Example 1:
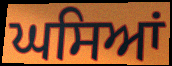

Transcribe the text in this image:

ਘਸਿਆਂ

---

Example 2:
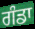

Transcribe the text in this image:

ਗੰਡਾ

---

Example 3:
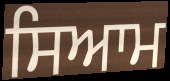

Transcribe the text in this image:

ਸਿਆਮ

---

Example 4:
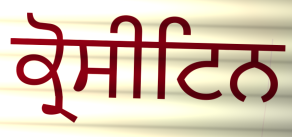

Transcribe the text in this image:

ਕ੍ਰੋਸੀਟਿਨ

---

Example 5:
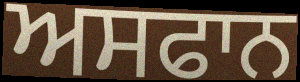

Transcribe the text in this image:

ਅਸਫਾਨ